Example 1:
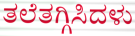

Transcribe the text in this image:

ತಲೆತಗ್ಗಿಸಿದಳು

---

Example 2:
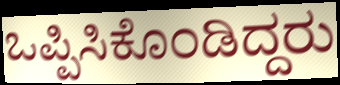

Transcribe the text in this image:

ಒಪ್ಪಿಸಿಕೊಂಡಿದ್ದರು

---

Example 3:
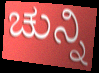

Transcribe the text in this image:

ಚುನ್ನಿ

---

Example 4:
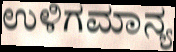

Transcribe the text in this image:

ಉಳಿಗಮಾನ್ಯ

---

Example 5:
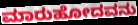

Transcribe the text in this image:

ಮಾರುಹೋದವನು